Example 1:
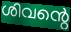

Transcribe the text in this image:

ശിവന്റെ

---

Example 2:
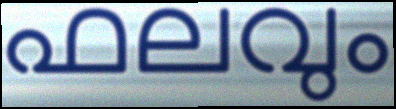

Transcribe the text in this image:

ഫലവും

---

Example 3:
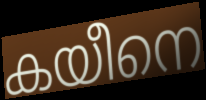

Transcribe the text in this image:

കയീനെ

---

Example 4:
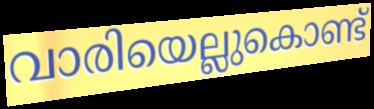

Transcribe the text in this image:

വാരിയെല്ലുകൊണ്ട്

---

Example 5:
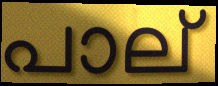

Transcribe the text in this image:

പാല്